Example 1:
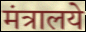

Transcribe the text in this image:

मंत्रालये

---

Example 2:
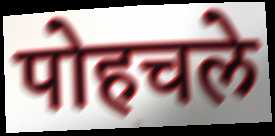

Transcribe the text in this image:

पोहचले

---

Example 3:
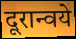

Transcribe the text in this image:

दूरान्वये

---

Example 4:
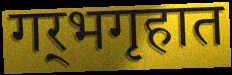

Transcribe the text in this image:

गर्भगृहात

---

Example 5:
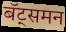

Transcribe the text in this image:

बॅट्समन